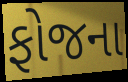
ફોજના